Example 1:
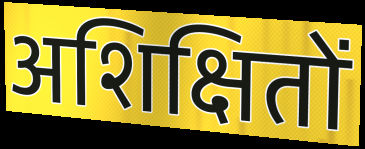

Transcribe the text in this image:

अशिक्षितों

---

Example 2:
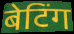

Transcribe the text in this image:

बेटिंग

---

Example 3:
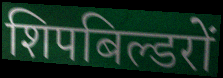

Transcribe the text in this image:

शिपबिल्डरों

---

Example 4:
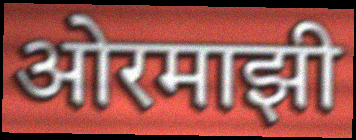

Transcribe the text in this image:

ओरमाझी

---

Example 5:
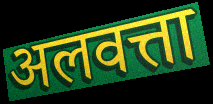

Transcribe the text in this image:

अलवत्ता